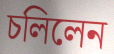
চলিলেন